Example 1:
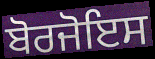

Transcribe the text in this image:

ਬੋਰਜੋਇਸ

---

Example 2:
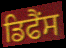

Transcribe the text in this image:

ਡਿਫੈਂਸ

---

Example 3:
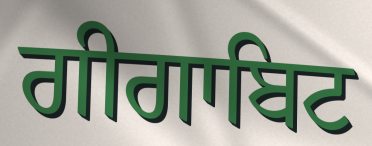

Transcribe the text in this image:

ਗੀਗਾਬਿਟ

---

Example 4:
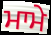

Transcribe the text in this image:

ਮਾਮੇ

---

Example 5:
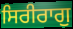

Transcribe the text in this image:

ਸਿਰੀਰਾਗੁ